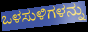
ಒಳಸುಳಿಗಳನ್ನು